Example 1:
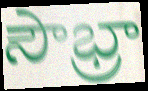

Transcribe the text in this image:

సౌభ్రా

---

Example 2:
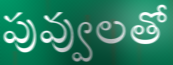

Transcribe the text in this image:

పువ్వులతో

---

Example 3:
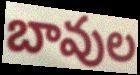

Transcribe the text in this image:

బావుల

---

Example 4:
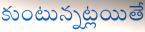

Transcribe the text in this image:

కుంటున్నట్లయితే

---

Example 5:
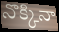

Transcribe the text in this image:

నొక్కినా